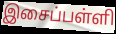
இசைப்பள்ளி